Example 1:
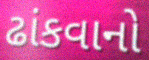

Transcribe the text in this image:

ઢાંકવાનો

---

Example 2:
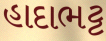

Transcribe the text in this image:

હાદાભટ્ટ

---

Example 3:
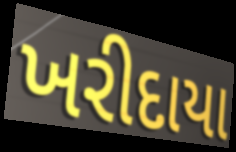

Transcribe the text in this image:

ખરીદાયા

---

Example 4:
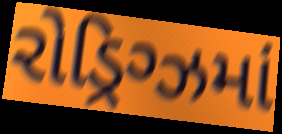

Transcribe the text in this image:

રોડ્રિગ્ઝમાં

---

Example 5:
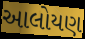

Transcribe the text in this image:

આલોયણ